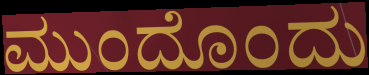
ಮುಂದೊಂದು